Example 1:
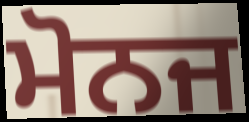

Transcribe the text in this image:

ਮੋਨਜ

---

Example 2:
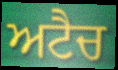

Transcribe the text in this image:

ਅਟੈਚ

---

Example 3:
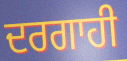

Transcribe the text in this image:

ਦਰਗਾਹੀ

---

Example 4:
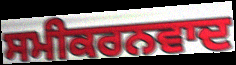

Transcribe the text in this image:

ਸਮੀਕਰਨਵਾਦ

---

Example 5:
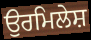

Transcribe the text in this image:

ਉਰਮਿਲੇਸ਼